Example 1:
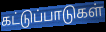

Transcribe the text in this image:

கட்டுப்பாடுகள்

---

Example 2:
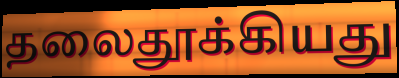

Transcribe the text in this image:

தலைதூக்கியது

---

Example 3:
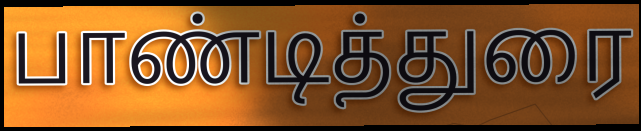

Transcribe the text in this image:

பாண்டித்துரை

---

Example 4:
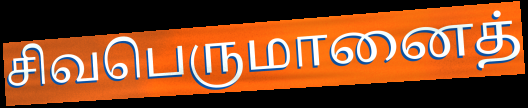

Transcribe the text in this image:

சிவபெருமானைத்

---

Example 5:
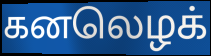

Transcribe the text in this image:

கனலெழக்